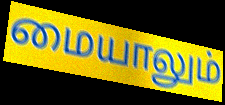
மையாலும்